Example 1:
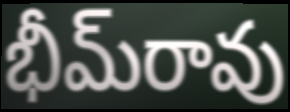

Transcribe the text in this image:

భీమ్‌రావు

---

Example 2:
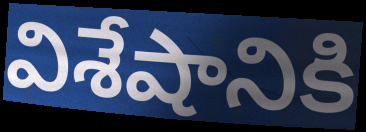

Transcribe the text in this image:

విశేషానికి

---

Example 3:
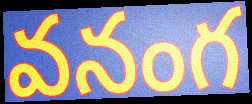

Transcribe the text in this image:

వనంగ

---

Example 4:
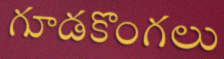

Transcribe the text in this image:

గూడకొంగలు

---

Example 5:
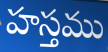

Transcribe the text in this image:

హస్తము